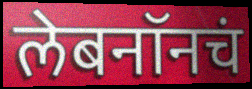
लेबनॉनचं